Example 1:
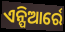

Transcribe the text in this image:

ଏନ୍ପିଆର୍ରେ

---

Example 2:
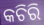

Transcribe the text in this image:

କଚିରି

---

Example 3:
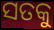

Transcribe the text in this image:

ସତକୁ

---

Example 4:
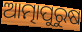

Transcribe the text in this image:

ଆତ୍ମାପୁରୁଷ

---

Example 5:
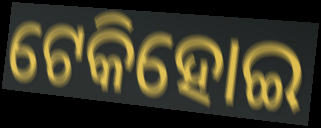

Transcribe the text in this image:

ଟେକିହୋଇ